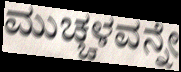
ಮುಚ್ಚಳವನ್ನೇ